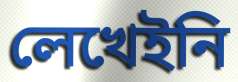
লেখেইনি